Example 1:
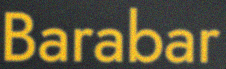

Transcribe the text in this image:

Barabar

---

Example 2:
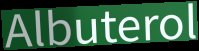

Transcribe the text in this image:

Albuterol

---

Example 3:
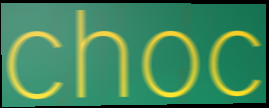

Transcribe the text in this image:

choc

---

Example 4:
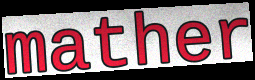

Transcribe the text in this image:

mather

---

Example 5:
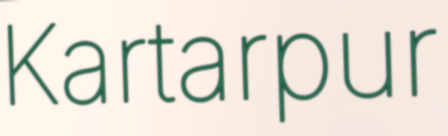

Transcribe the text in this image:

Kartarpur